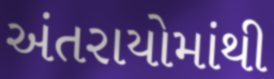
અંતરાયોમાંથી